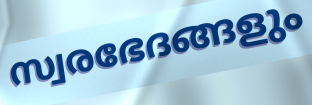
സ്വരഭേദങ്ങളും